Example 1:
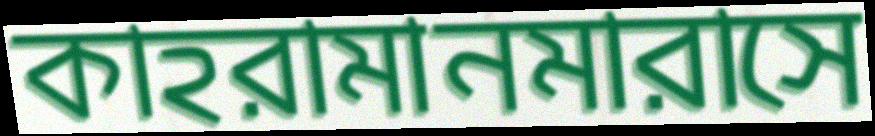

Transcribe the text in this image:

কাহরামানমারাসে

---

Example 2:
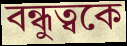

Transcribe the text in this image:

বন্ধুত্বকে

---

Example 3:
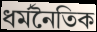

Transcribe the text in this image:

ধর্মনৈতিক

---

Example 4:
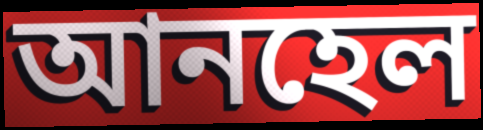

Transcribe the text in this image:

আনহেল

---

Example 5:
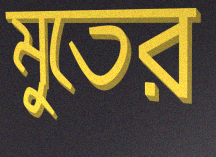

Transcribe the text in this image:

মুতের